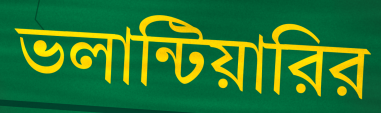
ভলান্টিয়ারির